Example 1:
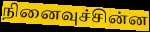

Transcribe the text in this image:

நினைவுச்சின்ன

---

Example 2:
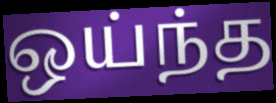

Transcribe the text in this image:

ஒய்ந்த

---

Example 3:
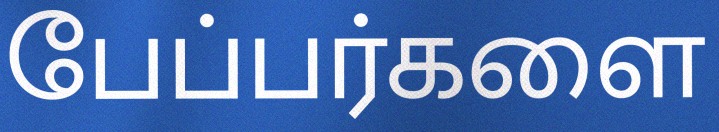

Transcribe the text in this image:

பேப்பர்களை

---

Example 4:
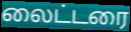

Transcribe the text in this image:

லைட்டரை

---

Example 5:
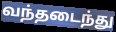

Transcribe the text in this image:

வந்தடைந்து